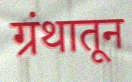
ग्रंथातून